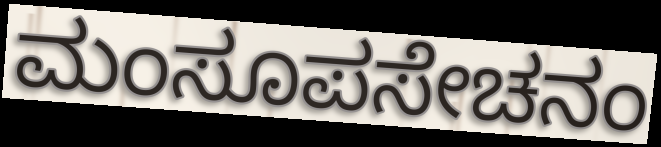
ಮಂಸೂಪಸೇಚನಂ